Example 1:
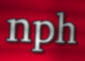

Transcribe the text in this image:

nph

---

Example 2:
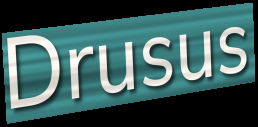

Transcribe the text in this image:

Drusus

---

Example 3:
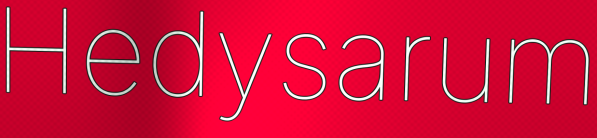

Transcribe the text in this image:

Hedysarum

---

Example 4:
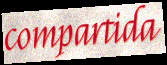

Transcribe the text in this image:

compartida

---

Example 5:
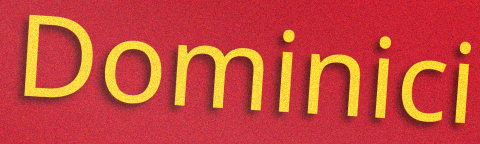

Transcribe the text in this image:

Dominici